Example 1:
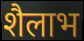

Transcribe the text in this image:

शैलाभ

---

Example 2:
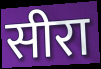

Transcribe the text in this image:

सीरा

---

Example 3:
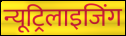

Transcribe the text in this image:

न्यूट्रिलाइजिंग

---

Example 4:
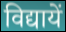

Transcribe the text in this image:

विद्यायें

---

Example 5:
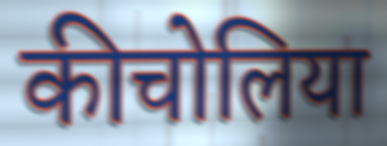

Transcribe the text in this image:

कीचोलिया